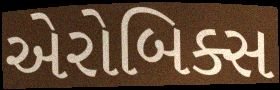
એરોબિક્સ